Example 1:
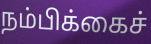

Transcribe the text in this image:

நம்பிக்கைச்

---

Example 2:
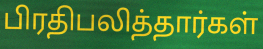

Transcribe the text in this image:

பிரதிபலித்தார்கள்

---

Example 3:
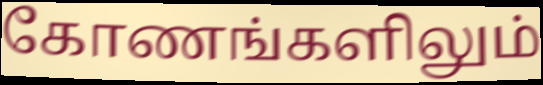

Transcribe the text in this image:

கோணங்களிலும்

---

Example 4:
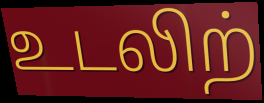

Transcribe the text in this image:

உடலிற்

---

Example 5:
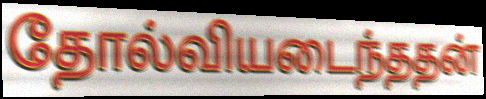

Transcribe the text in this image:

தோல்வியடைந்ததன்